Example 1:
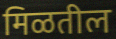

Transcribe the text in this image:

मिळतील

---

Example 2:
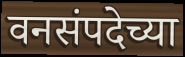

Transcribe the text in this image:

वनसंपदेच्या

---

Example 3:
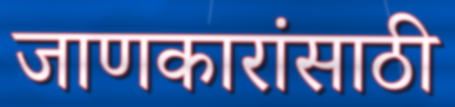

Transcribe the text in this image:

जाणकारांसाठी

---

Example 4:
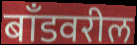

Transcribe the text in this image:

बॉंडवरील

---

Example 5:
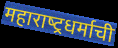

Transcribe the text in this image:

महाराष्ट्रधर्माची